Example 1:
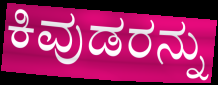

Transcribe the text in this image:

ಕಿವುಡರನ್ನು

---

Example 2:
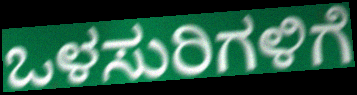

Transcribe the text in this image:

ಒಳಸುರಿಗಳಿಗೆ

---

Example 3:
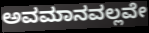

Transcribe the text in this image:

ಅವಮಾನವಲ್ಲವೇ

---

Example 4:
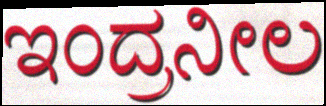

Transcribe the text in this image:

ಇಂದ್ರನೀಲ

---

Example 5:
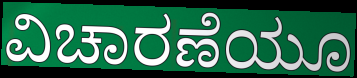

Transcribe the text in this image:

ವಿಚಾರಣೆಯೂ